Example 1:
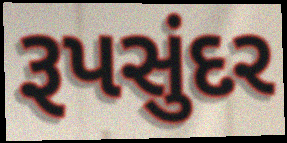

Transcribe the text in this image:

રૂપસુંદર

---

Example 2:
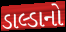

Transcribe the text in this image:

ડાલ્ડાનો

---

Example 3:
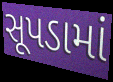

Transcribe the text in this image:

સૂપડામાં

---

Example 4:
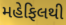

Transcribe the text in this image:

મહેફિલથી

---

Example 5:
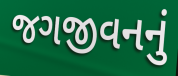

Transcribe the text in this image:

જગજીવનનું